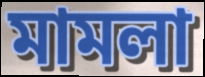
মামলা